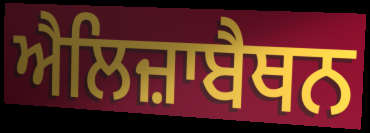
ਐਲਿਜ਼ਾਬੈਥਨ